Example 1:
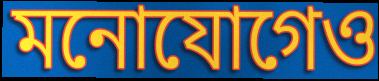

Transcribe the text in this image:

মনোযোগেও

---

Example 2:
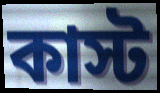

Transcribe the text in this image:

কাস্ট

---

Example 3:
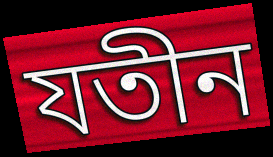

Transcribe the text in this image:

যতীন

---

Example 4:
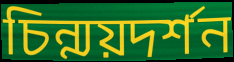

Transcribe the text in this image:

চিন্ময়দর্শন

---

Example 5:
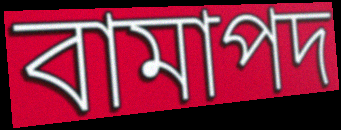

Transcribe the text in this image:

বামাপদ